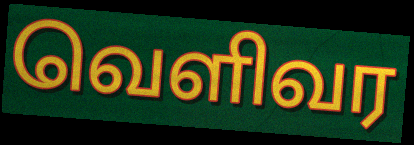
வெளிவர